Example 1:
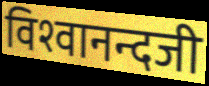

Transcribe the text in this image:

विश्वानन्दजी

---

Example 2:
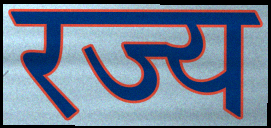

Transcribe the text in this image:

रज्य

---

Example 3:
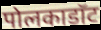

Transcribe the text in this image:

पोलकाडॉट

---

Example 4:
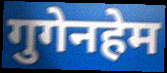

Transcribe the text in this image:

गुगेनहेम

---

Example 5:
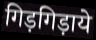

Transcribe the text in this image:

गिड़गिड़ाये